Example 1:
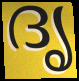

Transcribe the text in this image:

ദൃ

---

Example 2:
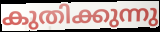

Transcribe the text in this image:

കുതിക്കുന്നു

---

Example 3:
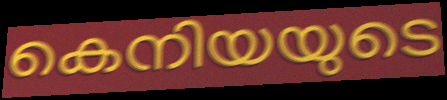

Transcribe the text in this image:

കെനിയയുടെ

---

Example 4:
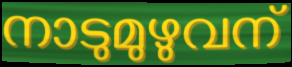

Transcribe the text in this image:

നാടുമുഴുവന്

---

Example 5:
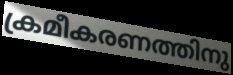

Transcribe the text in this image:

ക്രമീകരണത്തിനു